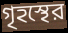
গৃহস্থের